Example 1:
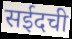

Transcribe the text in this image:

सईदची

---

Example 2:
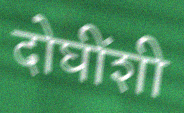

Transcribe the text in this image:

दोघींशी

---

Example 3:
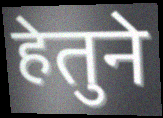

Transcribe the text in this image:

हेतुने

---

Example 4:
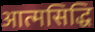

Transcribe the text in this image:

आत्मसिद्धि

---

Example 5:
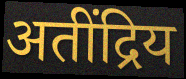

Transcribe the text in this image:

अतींद्रिय